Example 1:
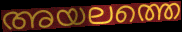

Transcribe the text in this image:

അയലത്തെ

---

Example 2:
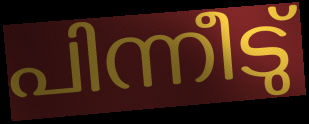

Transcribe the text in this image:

പിന്നീടു്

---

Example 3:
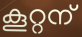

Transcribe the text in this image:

കൂറ്റന്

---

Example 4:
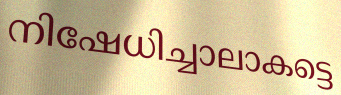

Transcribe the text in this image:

നിഷേധിച്ചാലാകട്ടെ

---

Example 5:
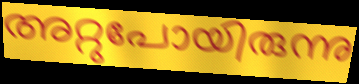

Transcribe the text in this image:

അറ്റുപോയിരുന്നു